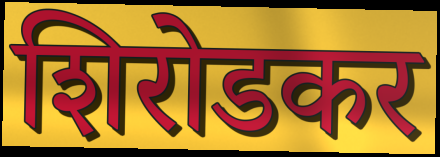
शिरोडकर